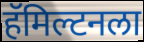
हॅमिल्टनला